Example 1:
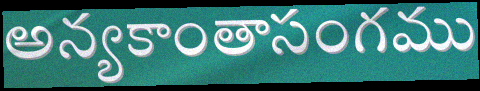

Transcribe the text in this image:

అన్యకాంతాసంగము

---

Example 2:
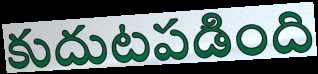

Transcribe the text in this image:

కుదుటపడింది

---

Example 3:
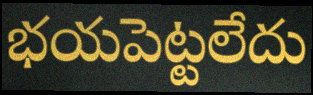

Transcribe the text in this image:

భయపెట్టలేదు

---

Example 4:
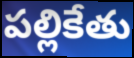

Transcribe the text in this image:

పల్లికేతు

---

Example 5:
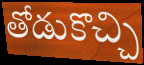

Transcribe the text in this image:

తోడుకొచ్చి